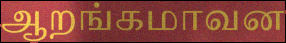
ஆறங்கமாவன